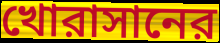
খোরাসানের